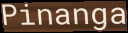
Pinanga